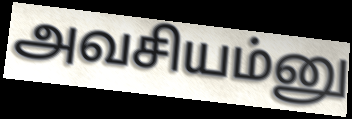
அவசியம்னு